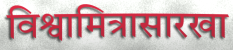
विश्वामित्रासारखा